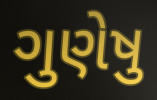
ગુણેષુ